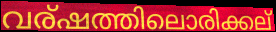
വര്ഷത്തിലൊരിക്കല്